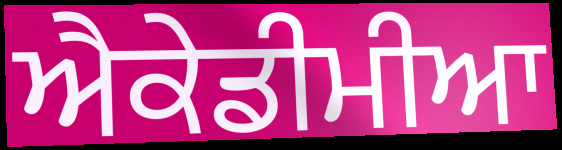
ਐਕੇਡੀਮੀਆ